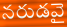
నరుడవై